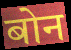
बोन